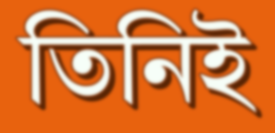
তিনিই